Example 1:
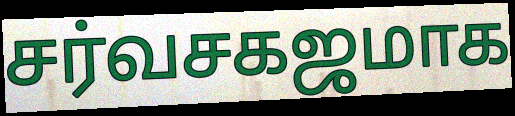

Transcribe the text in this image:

சர்வசகஜமாக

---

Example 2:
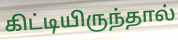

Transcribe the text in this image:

கிட்டியிருந்தால்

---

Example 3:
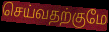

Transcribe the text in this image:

செய்வதற்குமே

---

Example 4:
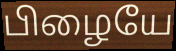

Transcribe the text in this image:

பிழையே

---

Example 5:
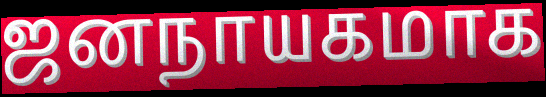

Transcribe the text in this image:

ஜனநாயகமாக